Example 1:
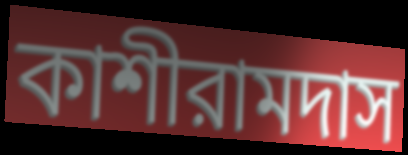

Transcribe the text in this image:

কাশীরামদাস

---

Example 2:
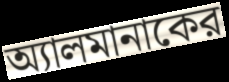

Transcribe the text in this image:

অ্যালমানাকের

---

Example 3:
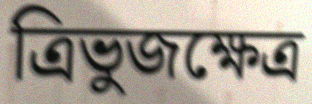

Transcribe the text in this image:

ত্রিভুজক্ষেত্র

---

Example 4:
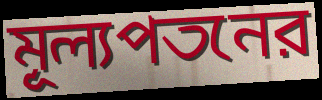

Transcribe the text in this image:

মূল্যপতনের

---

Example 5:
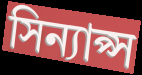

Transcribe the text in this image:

সিন্যাপ্স